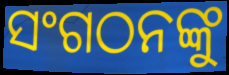
ସଂଗଠନଙ୍କୁ